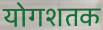
योगशतक